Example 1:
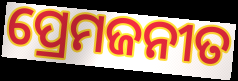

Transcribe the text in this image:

ପ୍ରେମଜନୀତ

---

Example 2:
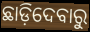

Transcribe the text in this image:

ଛାଡ଼ିଦେବାରୁ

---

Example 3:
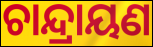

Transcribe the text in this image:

ଚାନ୍ଦ୍ରାୟଣ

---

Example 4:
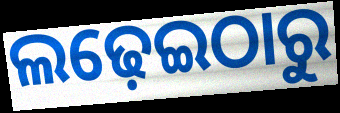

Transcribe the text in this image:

ଲଢ଼େଇଠାରୁ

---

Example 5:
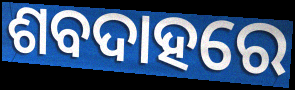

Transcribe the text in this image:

ଶବଦାହରେ